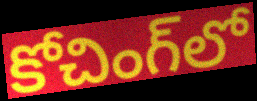
కోచింగ్‌లో